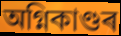
অগ্নিকাণ্ডৰ